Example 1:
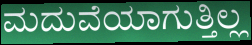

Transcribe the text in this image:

ಮದುವೆಯಾಗುತ್ತಿಲ್ಲ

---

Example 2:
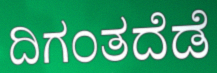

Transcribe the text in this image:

ದಿಗಂತದೆಡೆ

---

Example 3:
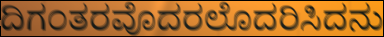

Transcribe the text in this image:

ದಿಗಂತರವೊದರಲೊದರಿಸಿದನು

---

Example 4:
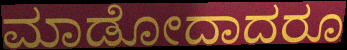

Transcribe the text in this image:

ಮಾಡೋದಾದರೂ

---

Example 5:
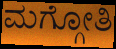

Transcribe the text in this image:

ಮಗ್ಗೋತಿ